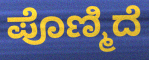
ಪೊಣ್ಮಿದೆ